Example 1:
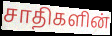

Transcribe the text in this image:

சாதிகளின்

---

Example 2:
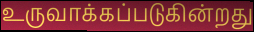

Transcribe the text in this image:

உருவாக்கப்படுகின்றது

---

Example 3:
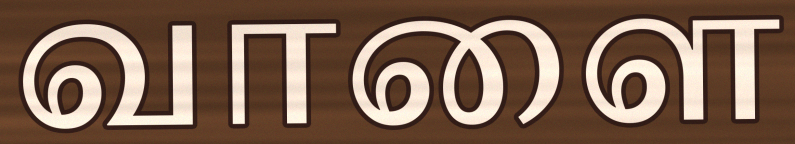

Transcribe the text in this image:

வாளை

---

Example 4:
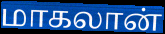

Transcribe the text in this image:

மாகலான்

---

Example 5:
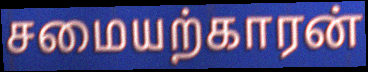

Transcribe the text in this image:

சமையற்காரன்